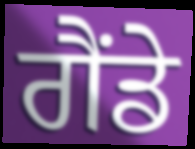
ਗੈਂਡੇ